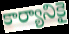
కార్యానికై